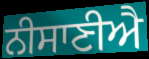
ਨੀਸਾਣੀਐ